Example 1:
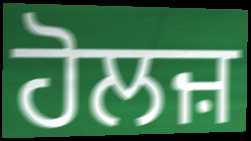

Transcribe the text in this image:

ਹੋਲਜ਼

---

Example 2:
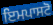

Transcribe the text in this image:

ਇਮਪਾਸਟੋ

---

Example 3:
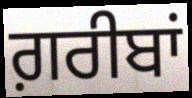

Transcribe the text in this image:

ਗ਼ਰੀਬਾਂ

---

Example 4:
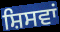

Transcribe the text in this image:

ਸ਼ਿਸਵਾਂ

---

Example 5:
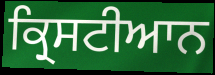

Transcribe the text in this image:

ਕ੍ਰਿਸਟੀਆਨ